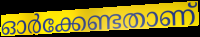
ഓർക്കേണ്ടതാണ്